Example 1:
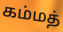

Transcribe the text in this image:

கம்மத்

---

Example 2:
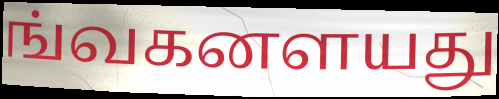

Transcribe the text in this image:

ங்வகனளயது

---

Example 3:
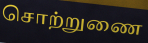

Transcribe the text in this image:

சொற்றுணை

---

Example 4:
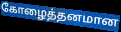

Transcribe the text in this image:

கோழைத்தனமான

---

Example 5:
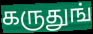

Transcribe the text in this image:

கருதுங்